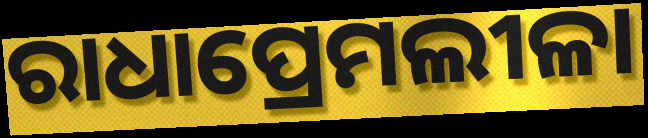
ରାଧାପ୍ରେମଲୀଳା